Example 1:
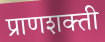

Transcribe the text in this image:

प्राणशक्ती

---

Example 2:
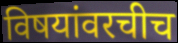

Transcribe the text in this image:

विषयांवरचीच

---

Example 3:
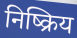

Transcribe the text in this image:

निष्क्रिय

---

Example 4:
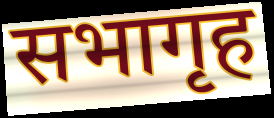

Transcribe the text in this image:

सभागृह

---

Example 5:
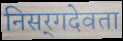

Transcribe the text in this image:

निसर्गदेवता